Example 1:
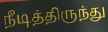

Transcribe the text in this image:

நீடித்திருந்து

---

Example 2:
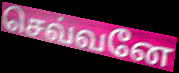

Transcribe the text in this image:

செவ்வனே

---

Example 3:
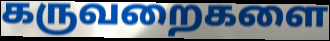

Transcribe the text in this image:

கருவறைகளை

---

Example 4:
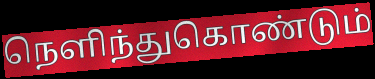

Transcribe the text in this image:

நெளிந்துகொண்டும்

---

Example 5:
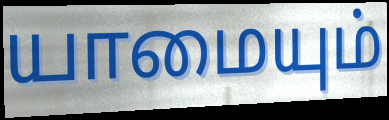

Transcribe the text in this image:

யாமையும்